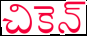
చికెన్